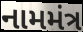
નામમંત્ર